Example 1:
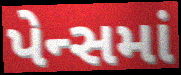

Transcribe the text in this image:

પેન્સમાં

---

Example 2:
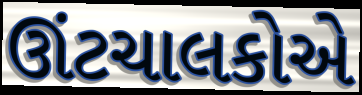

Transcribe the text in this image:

ઊંટચાલકોએ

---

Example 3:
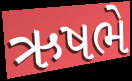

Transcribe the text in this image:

ઋષભે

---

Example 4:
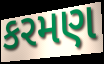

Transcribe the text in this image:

કરમણ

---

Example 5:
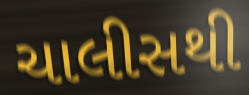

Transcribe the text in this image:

ચાલીસથી